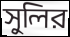
সুলির